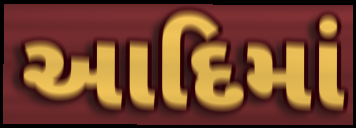
આદિમાં